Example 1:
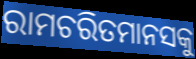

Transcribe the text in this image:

ରାମଚରିତମାନସକୁ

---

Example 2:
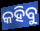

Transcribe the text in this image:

କହିବୁ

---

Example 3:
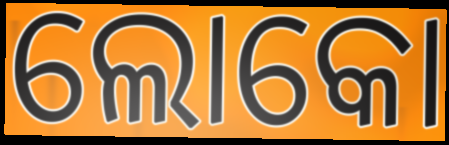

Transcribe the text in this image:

ଲୋକୋ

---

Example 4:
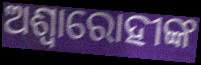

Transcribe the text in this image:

ଅଶ୍ୱାରୋହୀଙ୍କ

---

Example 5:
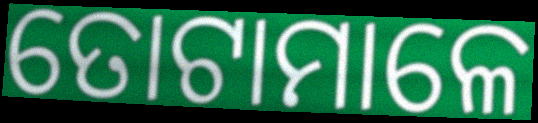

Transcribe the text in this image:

ତୋଟାମାଳେ